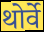
थोर्वे